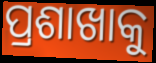
ପ୍ରଶାଖାକୁ